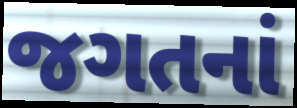
જગતનાં